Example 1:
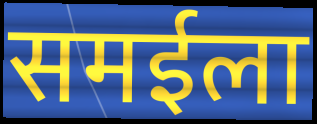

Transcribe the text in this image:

समईला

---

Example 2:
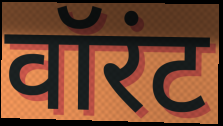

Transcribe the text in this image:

वॉरंट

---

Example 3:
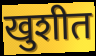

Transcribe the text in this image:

खुशीत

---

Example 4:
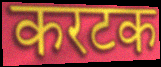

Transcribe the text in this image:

करटक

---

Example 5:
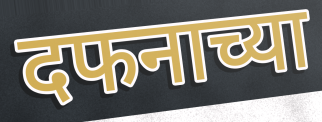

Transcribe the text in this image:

दफनाच्या